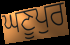
ਘਣੂਪੁਰ